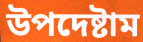
উপদেষ্টাম